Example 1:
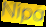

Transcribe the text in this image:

Nipa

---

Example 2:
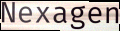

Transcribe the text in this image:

Nexagen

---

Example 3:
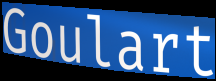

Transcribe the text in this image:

Goulart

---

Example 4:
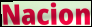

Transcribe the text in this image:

Nacion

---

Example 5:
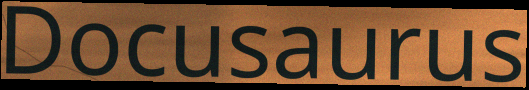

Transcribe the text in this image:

Docusaurus